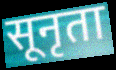
सूनृता